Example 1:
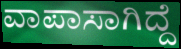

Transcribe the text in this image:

ವಾಪಾಸಾಗಿದ್ದೆ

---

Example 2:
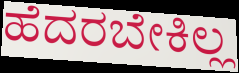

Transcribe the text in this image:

ಹೆದರಬೇಕಿಲ್ಲ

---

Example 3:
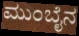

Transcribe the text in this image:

ಮುಂಬೈನ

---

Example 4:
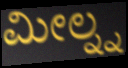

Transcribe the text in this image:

ಮೀಲ್ನ್ನ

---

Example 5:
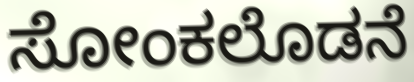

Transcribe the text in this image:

ಸೋಂಕಲೊಡನೆ